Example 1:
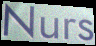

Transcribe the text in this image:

Nurs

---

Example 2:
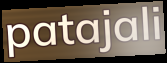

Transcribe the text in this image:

patajali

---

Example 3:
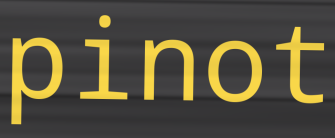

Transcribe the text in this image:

pinot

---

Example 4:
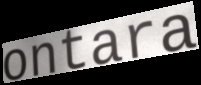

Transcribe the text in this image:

ontara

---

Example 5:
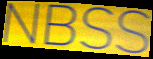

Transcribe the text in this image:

NBSS